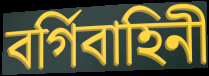
বর্গিবাহিনী